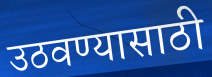
उठवण्यासाठी